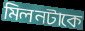
মিলনটাকে